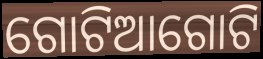
ଗୋଟିଆଗୋଟି